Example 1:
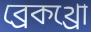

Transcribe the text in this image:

ব্রেকথ্রো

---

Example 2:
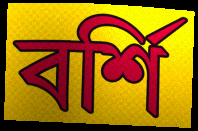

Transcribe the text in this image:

বর্শি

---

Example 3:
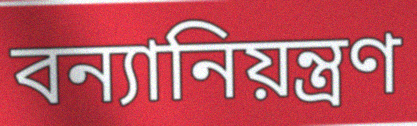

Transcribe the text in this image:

বন্যানিয়ন্ত্রণ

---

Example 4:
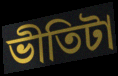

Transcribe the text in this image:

ভীতিটা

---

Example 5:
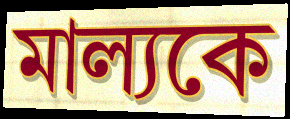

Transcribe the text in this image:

মাল্যকে